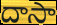
దాసా